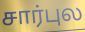
சார்புல